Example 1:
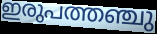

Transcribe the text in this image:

ഇരുപത്തഞ്ചു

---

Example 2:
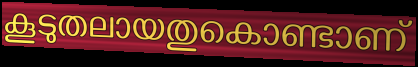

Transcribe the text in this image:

കൂടുതലായതുകൊണ്ടാണ്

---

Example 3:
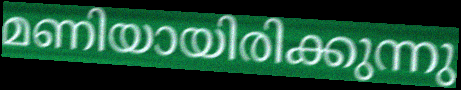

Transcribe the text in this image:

മണിയായിരിക്കുന്നു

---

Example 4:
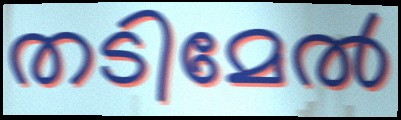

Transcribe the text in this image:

തടിമേൽ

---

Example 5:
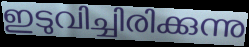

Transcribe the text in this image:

ഇടുവിച്ചിരിക്കുന്നു